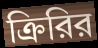
ক্রিরির